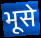
भूसे